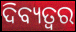
ଦିବ୍ୟତ୍ବର